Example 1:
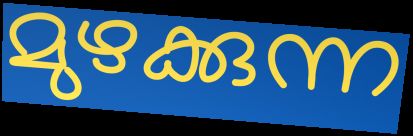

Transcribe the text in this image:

മുഴക്കുന്ന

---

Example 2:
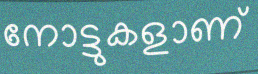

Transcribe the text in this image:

നോട്ടുകളാണ്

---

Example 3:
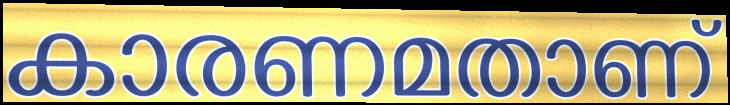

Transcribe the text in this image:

കാരണമതാണ്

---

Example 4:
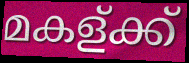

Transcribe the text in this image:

മകള്ക്ക്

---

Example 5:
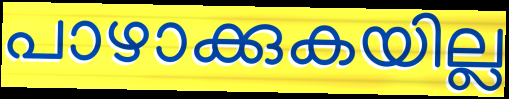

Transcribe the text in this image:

പാഴാക്കുകയില്ല